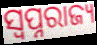
ସ୍ୱପ୍ନରାଜ୍ୟ